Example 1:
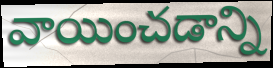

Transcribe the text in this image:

వాయించడాన్ని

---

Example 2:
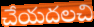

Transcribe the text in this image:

చేయదలచి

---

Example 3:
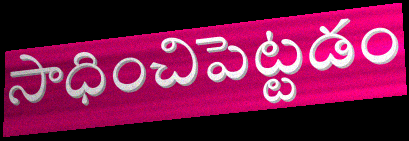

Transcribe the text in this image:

సాధించిపెట్టడం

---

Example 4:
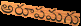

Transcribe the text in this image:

అరూపమగు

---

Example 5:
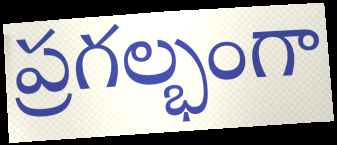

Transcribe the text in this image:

ప్రగల్భంగా